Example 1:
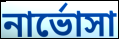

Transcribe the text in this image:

নার্ভোসা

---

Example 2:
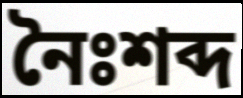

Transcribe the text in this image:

নৈঃশব্দ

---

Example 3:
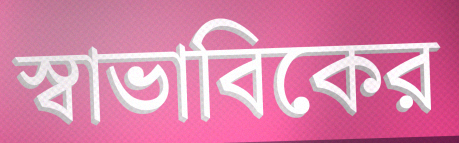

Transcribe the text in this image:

স্বাভাবিকের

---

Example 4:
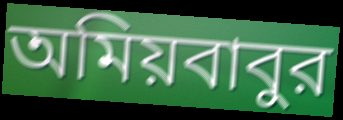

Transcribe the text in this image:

অমিয়বাবুর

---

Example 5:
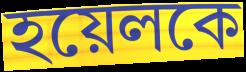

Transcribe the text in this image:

হয়েলকে